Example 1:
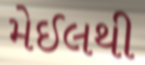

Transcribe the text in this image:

મેઈલથી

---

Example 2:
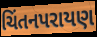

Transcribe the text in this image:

ચિંતનપરાયણ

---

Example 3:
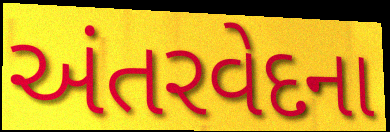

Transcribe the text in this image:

અંતરવેદના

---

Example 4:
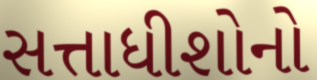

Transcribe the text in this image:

સત્તાધીશોનો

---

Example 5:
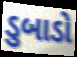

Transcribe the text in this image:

ડુબાડો